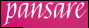
pansare